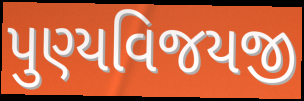
પુણ્યવિજયજી